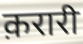
क़रारी